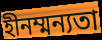
হীনম্মন্যতা